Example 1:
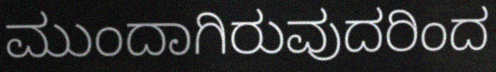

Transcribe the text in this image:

ಮುಂದಾಗಿರುವುದರಿಂದ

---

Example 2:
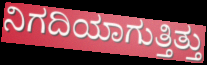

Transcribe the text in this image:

ನಿಗದಿಯಾಗುತ್ತಿತ್ತು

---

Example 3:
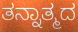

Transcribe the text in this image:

ತನ್ನಾತ್ಮದ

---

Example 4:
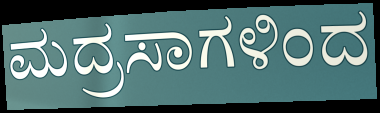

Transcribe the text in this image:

ಮದ್ರಸಾಗಳಿಂದ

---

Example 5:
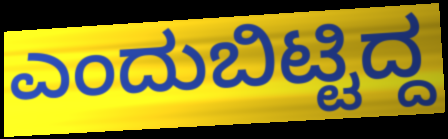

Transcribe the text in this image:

ಎಂದುಬಿಟ್ಟಿದ್ದ